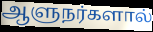
ஆளுநர்களால்